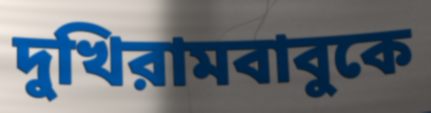
দুখিরামবাবুকে